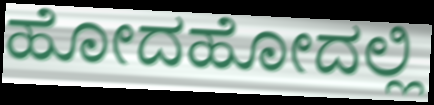
ಹೋದಹೋದಲ್ಲಿ